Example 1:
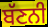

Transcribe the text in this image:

ਬੱਣਨੀ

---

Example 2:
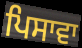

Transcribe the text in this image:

ਪਿਸਾਵਾ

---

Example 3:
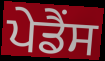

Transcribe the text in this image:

ਪੇਡੈਂਸ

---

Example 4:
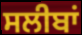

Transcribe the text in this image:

ਸਲੀਬਾਂ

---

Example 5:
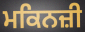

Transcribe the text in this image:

ਮਕਿਨਜ਼ੀ